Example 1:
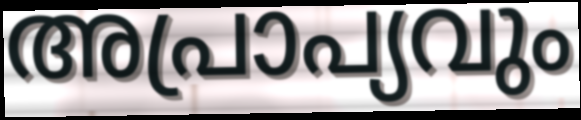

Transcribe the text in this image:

അപ്രാപ്യവും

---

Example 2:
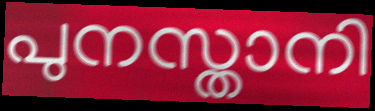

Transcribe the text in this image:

പുനസ്താനി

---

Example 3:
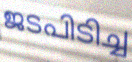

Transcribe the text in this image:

ജടപിടിച്ച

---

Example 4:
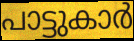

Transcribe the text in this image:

പാട്ടുകാർ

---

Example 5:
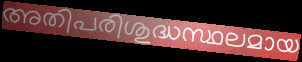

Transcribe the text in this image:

അതിപരിശുദ്ധസ്ഥലമായ